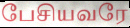
பேசியவரே